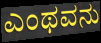
ಎಂಥವನು